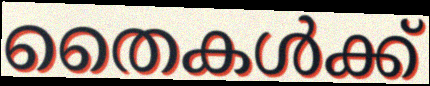
തൈകൾക്ക്